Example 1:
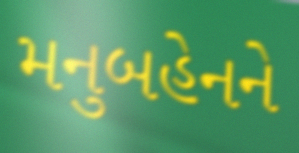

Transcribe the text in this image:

મનુબહેનને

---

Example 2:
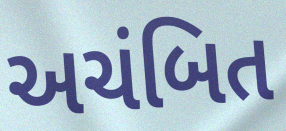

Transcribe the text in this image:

અચંબિત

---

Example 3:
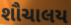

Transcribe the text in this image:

શૌચાલય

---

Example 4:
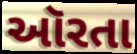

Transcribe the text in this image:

ઑરતા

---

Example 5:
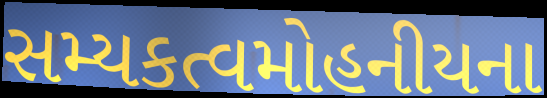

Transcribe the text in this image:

સમ્યકત્વમોહનીયના